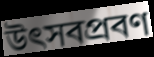
উৎসবপ্রবণ